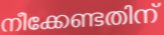
നീക്കേണ്ടതിന്